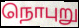
நொபுறு